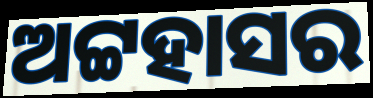
ଅଟ୍ଟହାସର